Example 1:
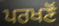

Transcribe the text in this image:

ਪਰਖਣੋਂ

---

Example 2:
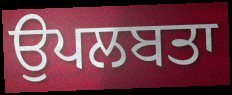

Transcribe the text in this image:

ਉਪਲਬਤਾ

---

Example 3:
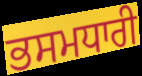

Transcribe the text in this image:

ਭਸਮਧਾਰੀ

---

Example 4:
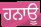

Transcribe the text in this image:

ਹਨਾਊ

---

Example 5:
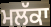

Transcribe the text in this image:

ਮਲੱਕਾ